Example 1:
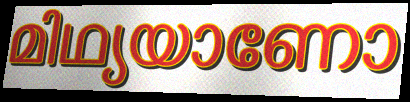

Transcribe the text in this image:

മിഥ്യയാണോ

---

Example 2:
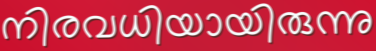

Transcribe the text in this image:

നിരവധിയായിരുന്നു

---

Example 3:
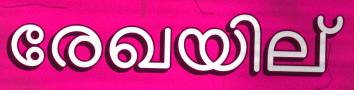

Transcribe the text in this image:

രേഖയില്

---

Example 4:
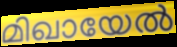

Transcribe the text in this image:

മിഖായേൽ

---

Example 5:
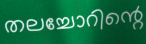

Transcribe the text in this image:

തലച്ചോറിന്റെ